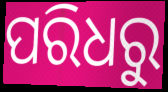
ପରିଧରୁ